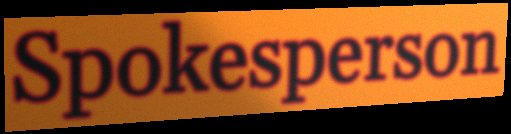
Spokesperson